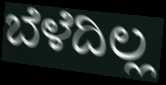
ಬೆಳೆದಿಲ್ಲ